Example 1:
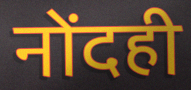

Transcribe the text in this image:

नोंदही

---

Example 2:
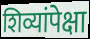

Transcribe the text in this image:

शिव्यांपेक्षा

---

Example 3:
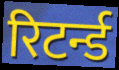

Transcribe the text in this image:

रिटर्न्ड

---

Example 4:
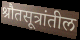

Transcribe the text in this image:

श्रौतसूत्रांतील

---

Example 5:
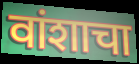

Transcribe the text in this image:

वांशाचा